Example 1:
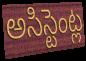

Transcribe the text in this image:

అసిస్టెంట్ల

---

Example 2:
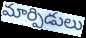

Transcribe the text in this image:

మార్పిడులు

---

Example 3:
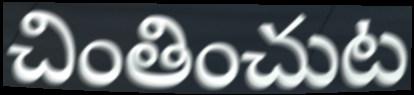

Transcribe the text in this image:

చింతించుట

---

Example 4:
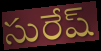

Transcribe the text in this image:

సురేష్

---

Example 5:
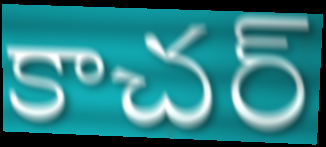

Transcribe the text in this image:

కాచర్